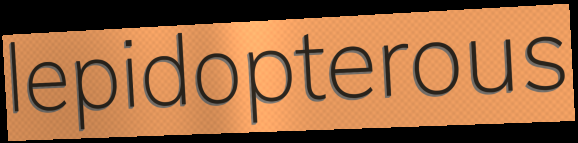
lepidopterous